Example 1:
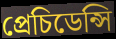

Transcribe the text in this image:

প্ৰেচিডেন্সি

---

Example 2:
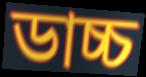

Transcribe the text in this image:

ডাচ্চ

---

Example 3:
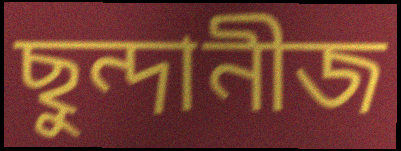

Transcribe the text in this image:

ছুন্দানীজ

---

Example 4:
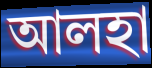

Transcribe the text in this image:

আলহা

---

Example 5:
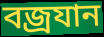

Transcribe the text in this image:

বজ্ৰযান